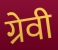
ग्रेवी